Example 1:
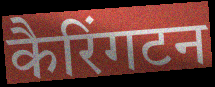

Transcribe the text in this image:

कैरिंगटन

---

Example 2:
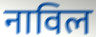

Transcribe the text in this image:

नाविल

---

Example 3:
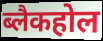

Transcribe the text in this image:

ब्लैकहोल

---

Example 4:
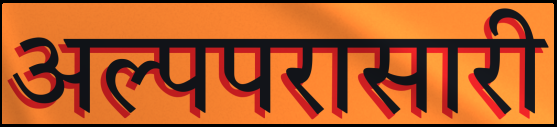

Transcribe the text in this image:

अल्पपरासारी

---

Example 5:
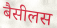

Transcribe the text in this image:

बैसीलस